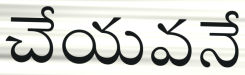
చేయవనే